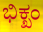
ಭಿಕ್ಖಂ